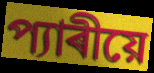
প্যাৰীয়ে